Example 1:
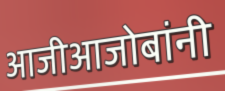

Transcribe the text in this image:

आजीआजोबांनी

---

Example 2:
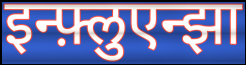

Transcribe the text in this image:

इन्फ़्लुएन्झा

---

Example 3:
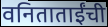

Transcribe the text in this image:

वनिताताईंची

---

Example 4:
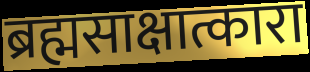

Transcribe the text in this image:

ब्रह्मसाक्षात्कारा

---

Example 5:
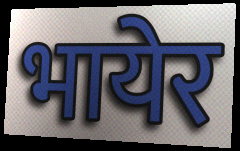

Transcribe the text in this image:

भायेर